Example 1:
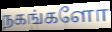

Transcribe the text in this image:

நகங்களோ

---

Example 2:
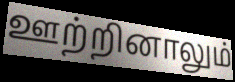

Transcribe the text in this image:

ஊற்றினாலும்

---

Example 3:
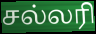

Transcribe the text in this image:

சல்லரி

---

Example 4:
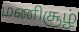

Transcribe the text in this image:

மணிசூழ்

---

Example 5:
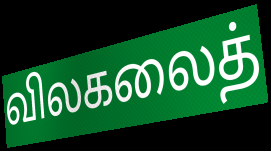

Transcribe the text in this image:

விலகலைத்